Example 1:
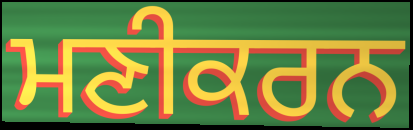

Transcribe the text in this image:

ਮਣੀਕਰਨ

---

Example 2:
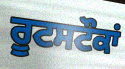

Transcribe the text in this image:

ਰੂਟਸਟੌਕਾਂ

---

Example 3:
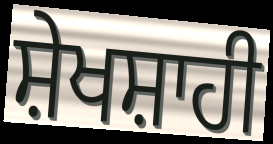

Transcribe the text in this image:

ਸ਼ੇਖਸ਼ਾਹੀ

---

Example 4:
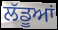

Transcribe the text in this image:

ਲੱਡੂਆਂ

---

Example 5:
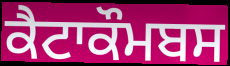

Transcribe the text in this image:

ਕੈਟਾਕੌਮਬਸ